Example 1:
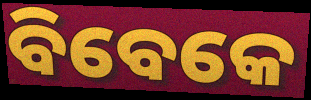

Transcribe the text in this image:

ବିବେକେ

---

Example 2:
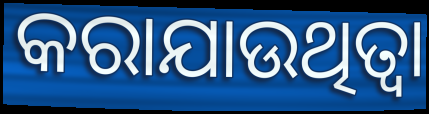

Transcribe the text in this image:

କରାଯାଉଥିତ୍ବା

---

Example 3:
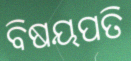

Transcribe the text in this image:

ବିଷୟପତି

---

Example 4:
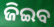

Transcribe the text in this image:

ଜିଇବ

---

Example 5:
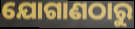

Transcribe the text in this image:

ଯୋଗାଣଠାରୁ